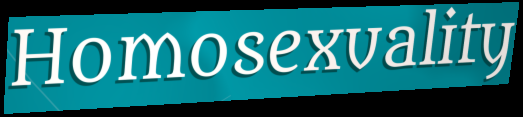
Homosexuality